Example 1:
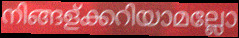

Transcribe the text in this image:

നിങ്ങള്ക്കറിയാമല്ലോ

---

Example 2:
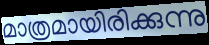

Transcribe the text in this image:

മാത്രമായിരിക്കുന്നു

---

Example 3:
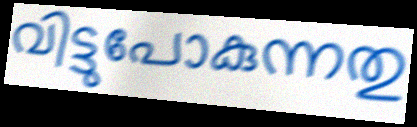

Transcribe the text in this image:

വിട്ടുപോകുന്നതു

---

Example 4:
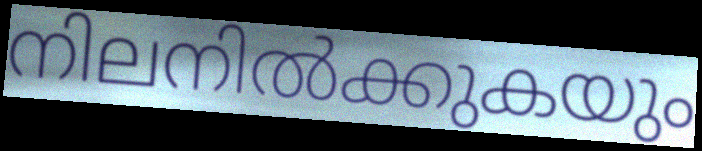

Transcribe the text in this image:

നിലനിൽക്കുകയും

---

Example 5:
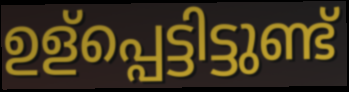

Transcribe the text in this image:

ഉള്പ്പെട്ടിട്ടുണ്ട്